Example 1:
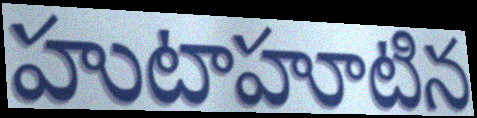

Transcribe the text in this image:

హుటాహూటిన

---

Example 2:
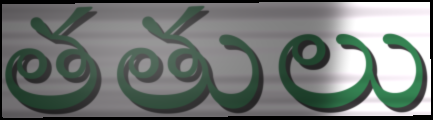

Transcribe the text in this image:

తతులు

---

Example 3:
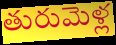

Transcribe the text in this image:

తురుమెళ్ల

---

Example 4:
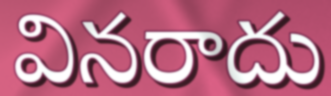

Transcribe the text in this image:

వినరాదు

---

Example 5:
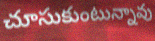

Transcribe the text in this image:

చూసుకుంటున్నావు